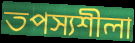
তপস্যশীলা